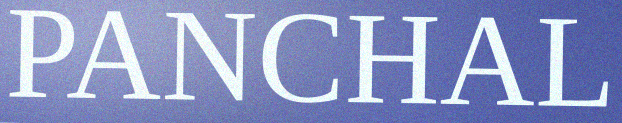
PANCHAL